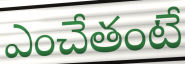
ఎంచేతంటే